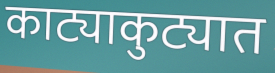
काट्याकुट्यात